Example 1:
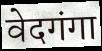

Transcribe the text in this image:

वेदगंगा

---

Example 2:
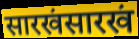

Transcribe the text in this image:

सारखंसारखं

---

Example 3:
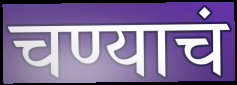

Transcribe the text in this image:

चण्याचं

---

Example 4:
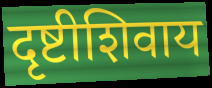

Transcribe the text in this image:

दृष्टीशिवाय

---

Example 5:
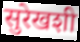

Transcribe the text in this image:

सुरेखशी